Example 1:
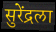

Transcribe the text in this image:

सुरेंद्रला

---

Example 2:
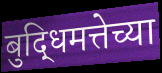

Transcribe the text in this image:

बुद्धिमत्तेच्या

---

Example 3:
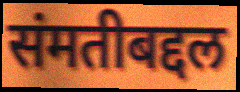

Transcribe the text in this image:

संमतीबद्दल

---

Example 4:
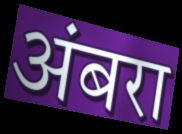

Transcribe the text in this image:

अंबरा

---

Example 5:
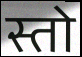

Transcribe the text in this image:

स्तो